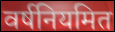
वर्षनियमित